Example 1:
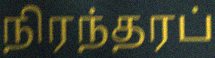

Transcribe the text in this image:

நிரந்தரப்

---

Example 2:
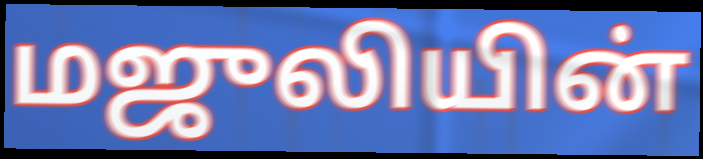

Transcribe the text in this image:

மஜுலியின்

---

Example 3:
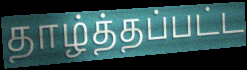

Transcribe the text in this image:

தாழ்த்தப்பட்ட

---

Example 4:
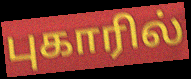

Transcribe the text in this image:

புகாரில்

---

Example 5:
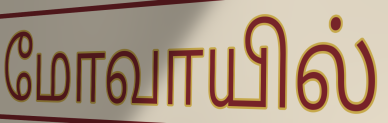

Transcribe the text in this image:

மோவாயில்